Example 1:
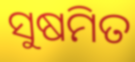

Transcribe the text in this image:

ସୁଷମିତ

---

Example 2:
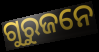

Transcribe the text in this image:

ଗୁରୁଜନେ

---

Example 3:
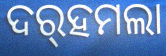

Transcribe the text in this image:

ଦର୍‌ହମଲା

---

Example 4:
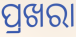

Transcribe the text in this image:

ପ୍ରଖରା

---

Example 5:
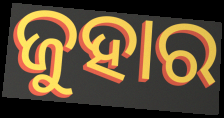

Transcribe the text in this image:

ଜୁହାର